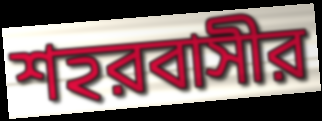
শহরবাসীর